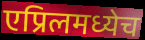
एप्रिलमध्येच